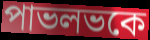
পাভলভকে